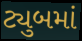
ટ્યુબમાં